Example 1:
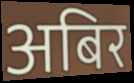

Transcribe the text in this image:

अबिर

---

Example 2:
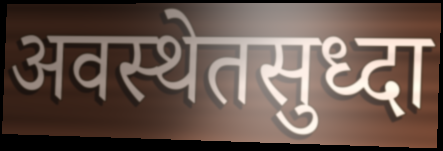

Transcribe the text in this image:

अवस्थेतसुध्दा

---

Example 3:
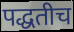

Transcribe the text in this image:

पद्धतीच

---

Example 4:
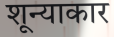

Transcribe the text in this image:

शून्याकार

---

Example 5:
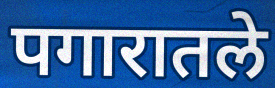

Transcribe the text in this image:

पगारातले